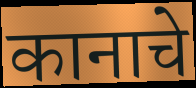
कानाचे